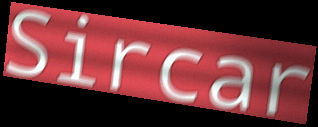
Sircar